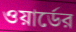
ওয়ার্ডের